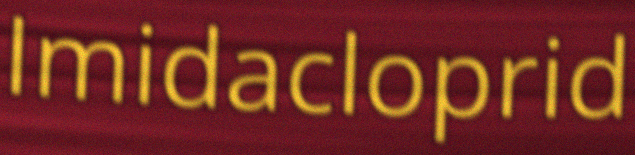
Imidacloprid